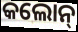
କଲୋନ୍